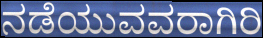
ನಡೆಯುವವರಾಗಿರಿ